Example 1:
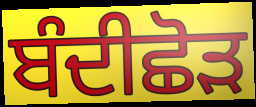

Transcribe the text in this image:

ਬੰਦੀਛੋੜ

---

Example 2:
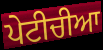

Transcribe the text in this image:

ਪੇਟੀਚੀਆ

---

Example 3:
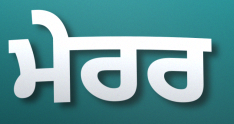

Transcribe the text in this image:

ਮੇਰਰ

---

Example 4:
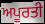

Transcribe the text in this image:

ਅਪੂਰਤੀ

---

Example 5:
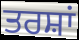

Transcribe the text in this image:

ਤਰਸ਼ਾਂ